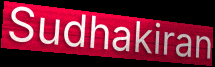
Sudhakiran